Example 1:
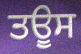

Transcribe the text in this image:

ਤਊਸ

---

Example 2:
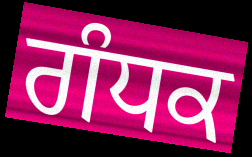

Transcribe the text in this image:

ਗੰਧਕ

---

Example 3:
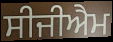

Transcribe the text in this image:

ਸੀਜੀਐਮ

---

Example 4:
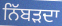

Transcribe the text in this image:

ਨਿੱਬੜਦਾ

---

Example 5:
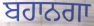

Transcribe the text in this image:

ਬਹਾਨਗਾ